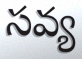
సవ్య